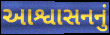
આશ્વાસનનું